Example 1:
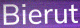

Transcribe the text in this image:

Bierut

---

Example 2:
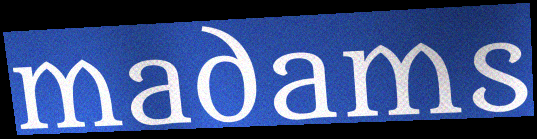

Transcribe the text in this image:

madams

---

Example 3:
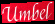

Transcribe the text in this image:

Umbel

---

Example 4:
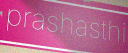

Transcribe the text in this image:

prashasthi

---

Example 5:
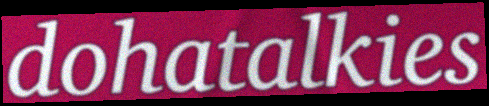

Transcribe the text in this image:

dohatalkies